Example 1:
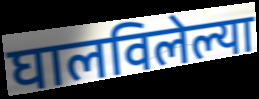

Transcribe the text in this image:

घालविलेल्या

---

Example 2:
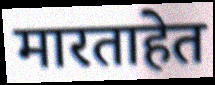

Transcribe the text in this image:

मारताहेत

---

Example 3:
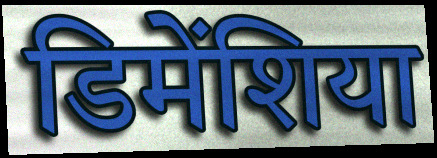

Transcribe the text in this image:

डिमेंशिया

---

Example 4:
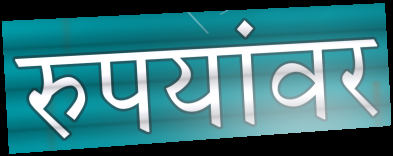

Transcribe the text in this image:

रुपयांवर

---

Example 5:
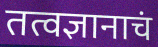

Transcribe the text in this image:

तत्वज्ञानाचं